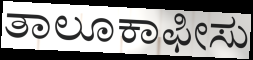
ತಾಲೂಕಾಫೀಸು